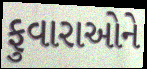
ફુવારાઓને